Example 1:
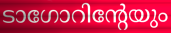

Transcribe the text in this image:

ടാഗോറിന്റേയും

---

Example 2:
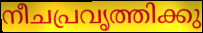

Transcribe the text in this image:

നീചപ്രവൃത്തിക്കു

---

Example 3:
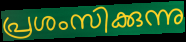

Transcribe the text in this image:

പ്രശംസിക്കുന്നു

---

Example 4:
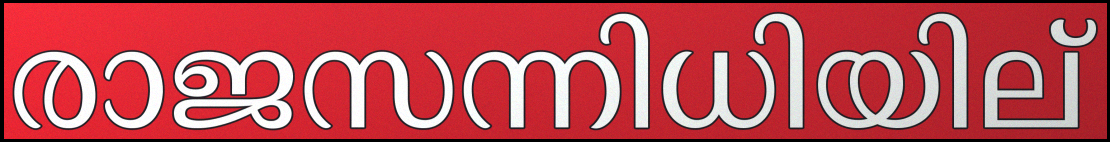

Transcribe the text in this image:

രാജസന്നിധിയില്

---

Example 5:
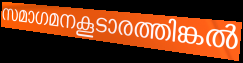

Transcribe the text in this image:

സമാഗമനകൂടാരത്തിങ്കൽ